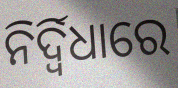
ନିର୍ଦ୍ୱିଧାରେ